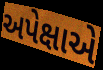
અપેક્ષાએ